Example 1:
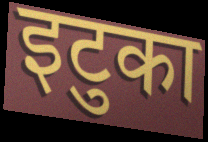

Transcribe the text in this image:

इटुका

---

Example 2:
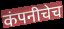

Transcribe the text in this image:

कंपनीचेच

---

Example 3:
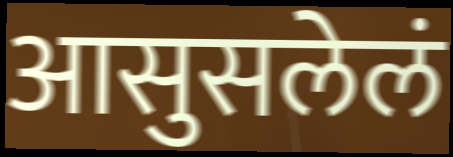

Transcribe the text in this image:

आसुसलेलं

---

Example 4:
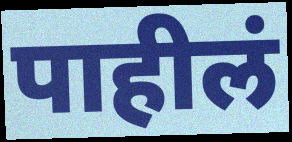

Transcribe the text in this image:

पाहीलं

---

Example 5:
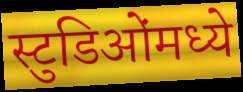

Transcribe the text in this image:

स्टुडिओंमध्ये